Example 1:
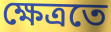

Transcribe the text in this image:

ক্ষেত্ৰতে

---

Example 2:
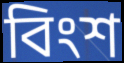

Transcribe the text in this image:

বিংশ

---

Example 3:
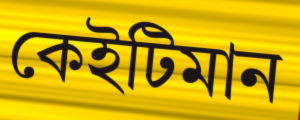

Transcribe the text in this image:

কেইটিমান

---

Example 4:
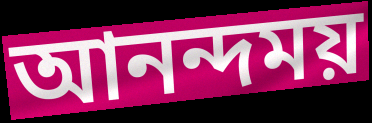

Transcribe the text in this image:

আনন্দময়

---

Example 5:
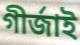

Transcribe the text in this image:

গীৰ্জাই